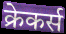
क्रेकर्स